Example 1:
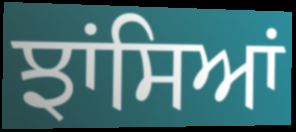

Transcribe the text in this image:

ਝਾਂਸਿਆਂ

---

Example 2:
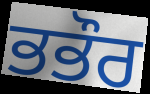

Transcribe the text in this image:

ਭਭੌਰ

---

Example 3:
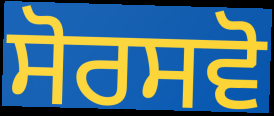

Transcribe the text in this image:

ਸੋਰਸਵੋ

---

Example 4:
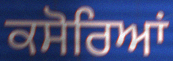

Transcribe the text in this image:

ਕਸੋਰਿਆਂ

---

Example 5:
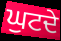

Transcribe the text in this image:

ਘੁਟਦੇ